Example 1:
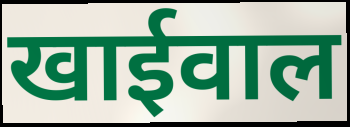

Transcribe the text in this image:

खाईवाल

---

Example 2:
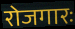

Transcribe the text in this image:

रोजगारः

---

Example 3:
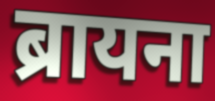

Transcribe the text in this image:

ब्रायना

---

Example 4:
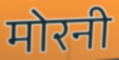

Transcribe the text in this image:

मोरनी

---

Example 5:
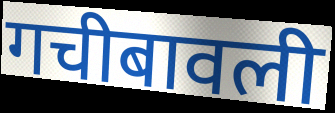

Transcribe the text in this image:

गचीबावली